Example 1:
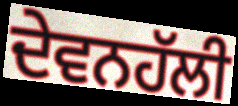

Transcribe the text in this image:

ਦੇਵਨਹੱਲੀ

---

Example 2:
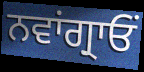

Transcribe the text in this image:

ਨਵਾਂਗ੍ਰਾਓਂ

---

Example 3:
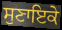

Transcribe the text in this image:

ਸੁਣਾਇਕੇ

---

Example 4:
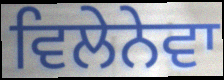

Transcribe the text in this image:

ਵਿਲੇਨੇਵਾ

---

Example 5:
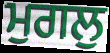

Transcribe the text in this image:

ਮੁਗਲੁ